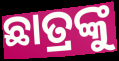
ଛାତ୍ରଙ୍କୁ